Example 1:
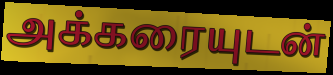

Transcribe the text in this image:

அக்கரையுடன்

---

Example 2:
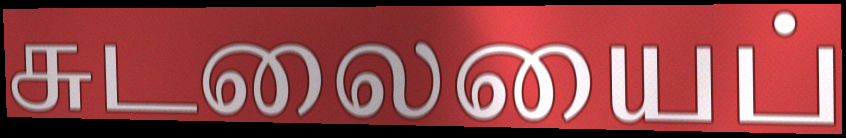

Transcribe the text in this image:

சுடலையைப்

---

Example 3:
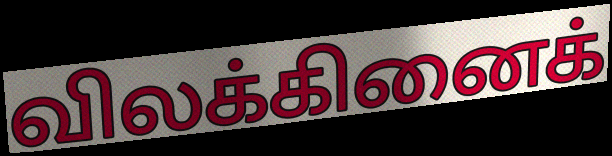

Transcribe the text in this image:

விலக்கினைக்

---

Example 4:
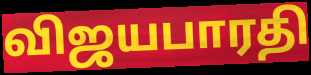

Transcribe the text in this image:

விஜயபாரதி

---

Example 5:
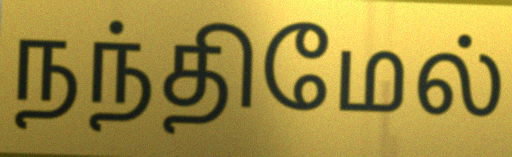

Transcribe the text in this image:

நந்திமேல்